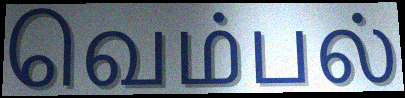
வெம்பல்